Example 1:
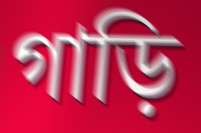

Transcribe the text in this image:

গাড়ি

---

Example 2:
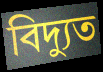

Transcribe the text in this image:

বিদ্যুত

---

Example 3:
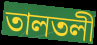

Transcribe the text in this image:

তালতলী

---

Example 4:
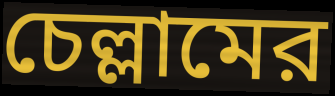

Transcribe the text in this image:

চেল্লামের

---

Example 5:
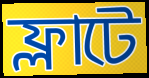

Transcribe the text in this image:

ফ্লাটে